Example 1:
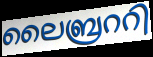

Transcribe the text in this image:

ലൈബ്രററി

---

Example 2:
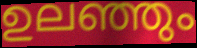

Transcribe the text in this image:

ഉലഞ്ഞും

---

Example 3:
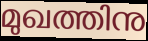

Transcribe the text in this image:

മുഖത്തിനു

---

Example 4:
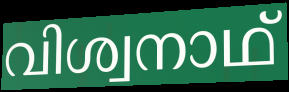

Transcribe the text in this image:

വിശ്വനാഥ്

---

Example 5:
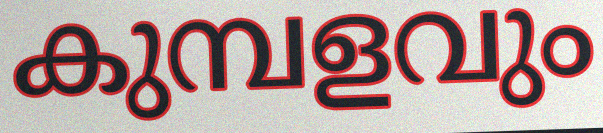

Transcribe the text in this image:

കുമ്പളവും